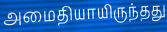
அமைதியாயிருந்தது